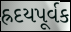
હ્રદયપૂર્વક